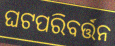
ଘଟପରିବର୍ତ୍ତନ